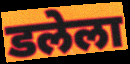
डलेला